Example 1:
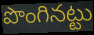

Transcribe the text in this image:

పొంగినట్టు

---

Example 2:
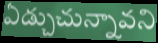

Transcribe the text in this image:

ఏడ్చుచున్నావని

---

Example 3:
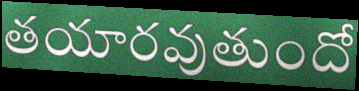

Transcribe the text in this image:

తయారవుతుందో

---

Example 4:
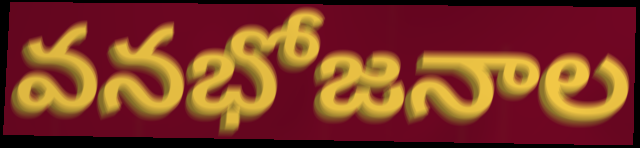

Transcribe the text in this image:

వనభోజనాల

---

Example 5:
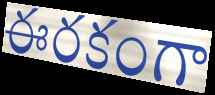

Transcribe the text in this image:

ఈరకంగా